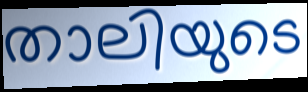
താലിയുടെ